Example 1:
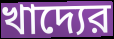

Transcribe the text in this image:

খাদ্যের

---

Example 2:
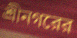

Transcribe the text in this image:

শ্রীনগরের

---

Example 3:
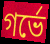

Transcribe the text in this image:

গর্ভে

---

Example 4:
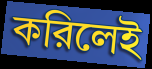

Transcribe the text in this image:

করিলেই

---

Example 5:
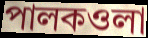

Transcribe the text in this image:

পালকওলা